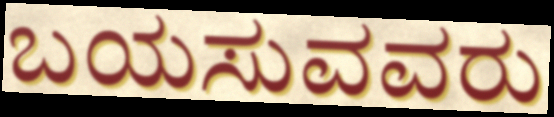
ಬಯಸುವವರು